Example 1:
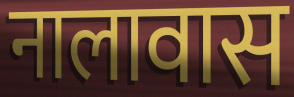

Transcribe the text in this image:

नालावास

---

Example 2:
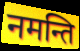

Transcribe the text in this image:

नमन्ति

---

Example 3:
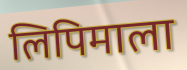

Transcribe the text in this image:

लिपिमाला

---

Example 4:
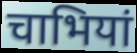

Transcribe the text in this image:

चाभियां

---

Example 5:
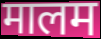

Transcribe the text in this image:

मालम